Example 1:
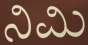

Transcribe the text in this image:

ನಿಮಿ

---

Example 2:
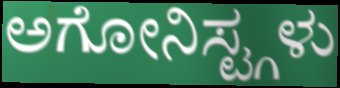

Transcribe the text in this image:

ಅಗೋನಿಸ್ಟ್ಗಳು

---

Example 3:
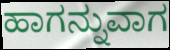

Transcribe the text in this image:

ಹಾಗನ್ನುವಾಗ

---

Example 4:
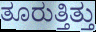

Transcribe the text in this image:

ತೂರುತ್ತಿತ್ತು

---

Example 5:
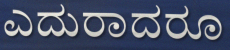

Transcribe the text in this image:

ಎದುರಾದರೂ